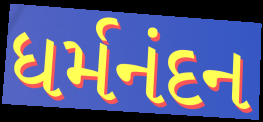
ધર્મનંદન